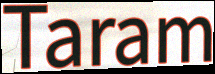
Taram